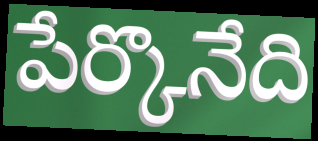
పేర్కొనేది